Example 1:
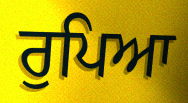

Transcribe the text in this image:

ਰੁਪਿਆ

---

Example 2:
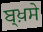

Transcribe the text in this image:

ਬ੍ਖ਼ਸੇ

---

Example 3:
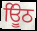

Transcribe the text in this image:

ਊਿਠ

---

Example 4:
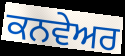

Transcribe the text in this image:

ਕਨਵੇਅਰ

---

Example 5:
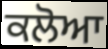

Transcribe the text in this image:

ਕਲੋਆ